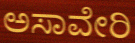
ಅಸಾವೇರಿ